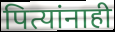
पित्यांनाही